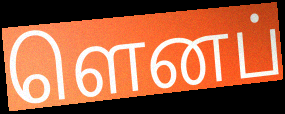
ளெனப்